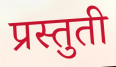
प्रस्तुती